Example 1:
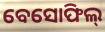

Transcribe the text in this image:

ବେସୋଫିଲ୍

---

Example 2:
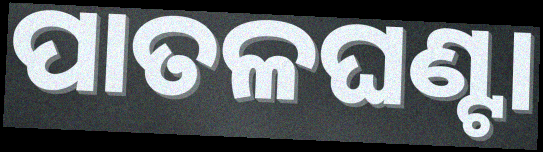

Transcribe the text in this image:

ପାତଳଘଣ୍ଟା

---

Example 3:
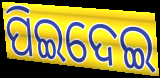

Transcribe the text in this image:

ପିଇଦେଇ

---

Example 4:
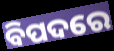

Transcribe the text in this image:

ବିପଦରେ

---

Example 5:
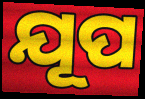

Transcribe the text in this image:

ଯୂପ